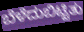
ಬೆಳೆದುಬಿಟ್ಟಿತು